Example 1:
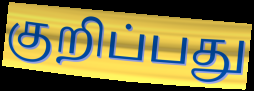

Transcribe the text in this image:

குறிப்பது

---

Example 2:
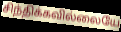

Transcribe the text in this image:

சிந்திக்கவில்லையே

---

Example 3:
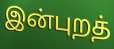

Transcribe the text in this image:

இன்புறத்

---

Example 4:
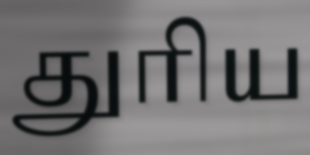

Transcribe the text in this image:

துரிய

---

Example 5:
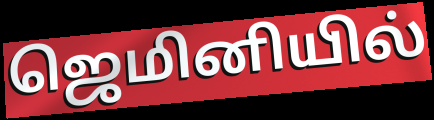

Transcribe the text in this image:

ஜெமினியில்